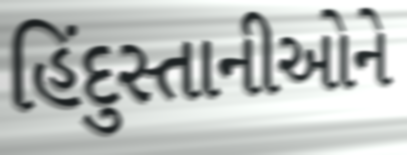
હિંદુસ્તાનીઓને